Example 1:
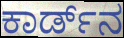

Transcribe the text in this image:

ಕಾರ್ಡ್‌ನ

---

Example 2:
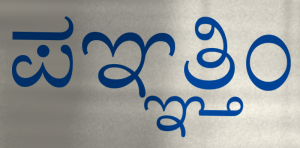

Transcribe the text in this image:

ಪಞ್ಞತ್ತಿಂ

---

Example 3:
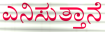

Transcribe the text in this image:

ಎನಿಸುತ್ತಾನೆ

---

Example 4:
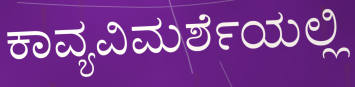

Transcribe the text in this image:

ಕಾವ್ಯವಿಮರ್ಶೆಯಲ್ಲಿ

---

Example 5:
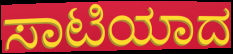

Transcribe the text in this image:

ಸಾಟಿಯಾದ